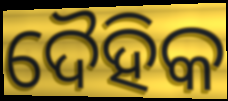
ଦୈହିକ